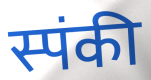
स्पंकी